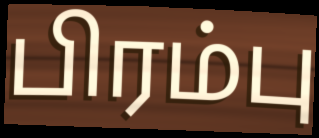
பிரம்பு